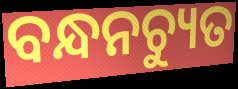
ବନ୍ଧନଚ୍ୟୁତ